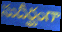
సుదీర్ఘంగా